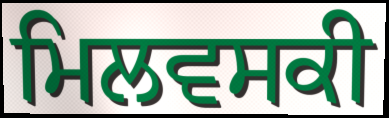
ਮਿਲਵਸਕੀ